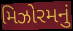
મિઝોરમનું